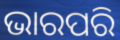
ଭାରପରି